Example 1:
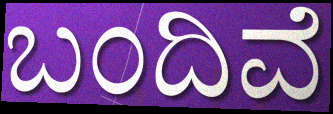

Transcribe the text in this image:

ಬಂದಿವೆ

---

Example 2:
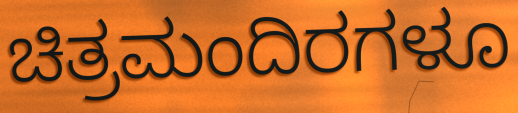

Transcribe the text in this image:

ಚಿತ್ರಮಂದಿರಗಳೂ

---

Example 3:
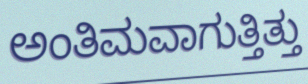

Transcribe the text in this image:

ಅಂತಿಮವಾಗುತ್ತಿತ್ತು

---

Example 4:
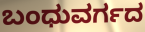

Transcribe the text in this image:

ಬಂಧುವರ್ಗದ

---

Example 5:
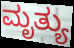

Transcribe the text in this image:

ಮೃತ್ಯು